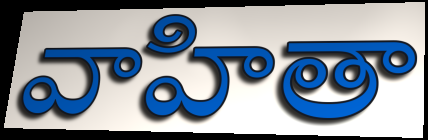
వాహితా